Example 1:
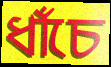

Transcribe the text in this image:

ধাঁচে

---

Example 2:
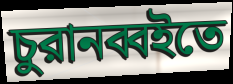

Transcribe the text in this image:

চুরানব্বইতে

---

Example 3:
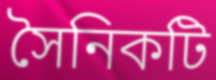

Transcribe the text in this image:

সৈনিকটি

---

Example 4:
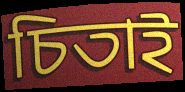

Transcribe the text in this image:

চিতাই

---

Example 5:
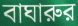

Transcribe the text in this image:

বাঘারুর